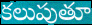
కలుపుతూ